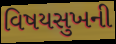
વિષયસુખની